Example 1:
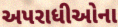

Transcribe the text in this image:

અપરાધીઓના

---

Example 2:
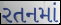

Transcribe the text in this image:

રતનમાં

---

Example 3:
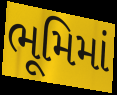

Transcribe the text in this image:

ભૂમિમાં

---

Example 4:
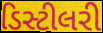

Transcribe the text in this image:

ડિસ્ટીલરી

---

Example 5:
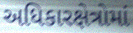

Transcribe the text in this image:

અધિકારક્ષેત્રોમાં